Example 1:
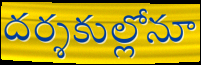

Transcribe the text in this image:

దర్శకుల్లోనూ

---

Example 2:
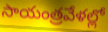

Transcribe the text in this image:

సాయంత్రవేళల్లో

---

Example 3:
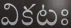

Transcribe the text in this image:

వికటః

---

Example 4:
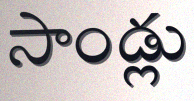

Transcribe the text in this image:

సాండ్లు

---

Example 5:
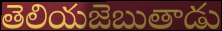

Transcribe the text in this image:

తెలియజెబుతాడు